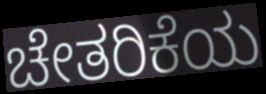
ಚೇತರಿಕೆಯ